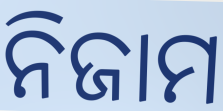
ନିଜାମ